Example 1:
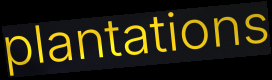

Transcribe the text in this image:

plantations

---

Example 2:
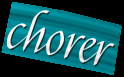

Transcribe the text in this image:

chorer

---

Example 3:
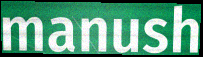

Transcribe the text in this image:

manush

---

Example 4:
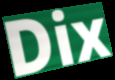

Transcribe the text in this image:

Dix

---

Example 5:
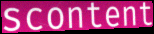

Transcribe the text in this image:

scontent